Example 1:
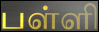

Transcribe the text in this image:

பள்ளி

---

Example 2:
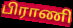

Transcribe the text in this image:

பிராணி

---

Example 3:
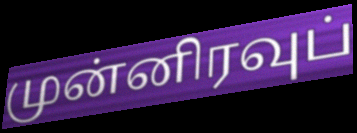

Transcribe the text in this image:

முன்னிரவுப்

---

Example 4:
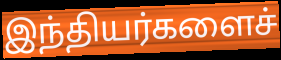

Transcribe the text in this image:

இந்தியர்களைச்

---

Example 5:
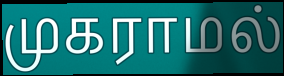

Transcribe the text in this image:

முகராமல்